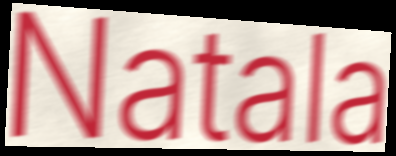
Natala